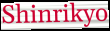
Shinrikyo